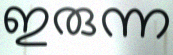
ഇരുന്ന